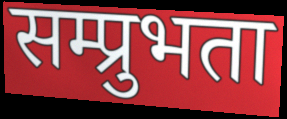
सम्प्रुभता